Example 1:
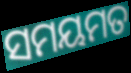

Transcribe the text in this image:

ସମୟମତ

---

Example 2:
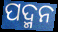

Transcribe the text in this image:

ପଦ୍ମନ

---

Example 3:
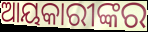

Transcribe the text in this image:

ଆୟକାରୀଙ୍କର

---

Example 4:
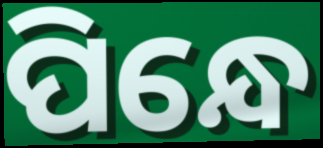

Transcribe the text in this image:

ପିନ୍ଧେ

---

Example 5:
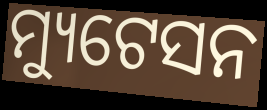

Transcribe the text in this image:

ମ୍ୟୁଟେସନ